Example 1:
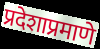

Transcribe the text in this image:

प्रदेशाप्रमाणे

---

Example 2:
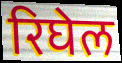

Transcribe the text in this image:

रिघेल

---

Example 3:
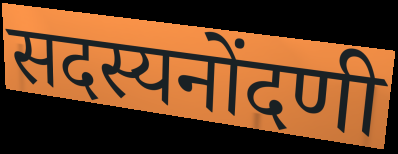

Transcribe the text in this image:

सदस्यनोंदणी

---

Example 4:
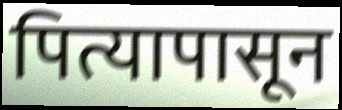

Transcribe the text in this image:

पित्यापासून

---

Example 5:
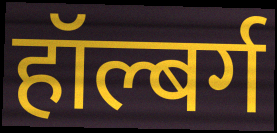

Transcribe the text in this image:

हॉल्बर्ग